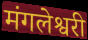
मंगलेश्वरी